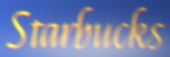
Starbucks